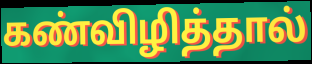
கண்விழித்தால்